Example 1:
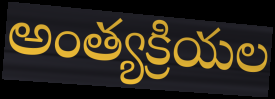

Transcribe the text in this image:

అంత్యక్రియల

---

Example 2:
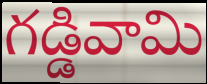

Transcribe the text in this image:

గడ్డివామి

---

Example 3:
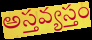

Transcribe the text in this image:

అస్తవ్యస్తం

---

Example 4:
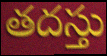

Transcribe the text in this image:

తదస్తు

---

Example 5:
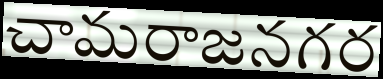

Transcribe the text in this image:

చామరాజనగర